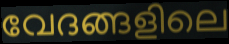
വേദങ്ങളിലെ